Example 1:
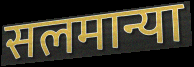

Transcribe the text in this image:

सलमान्या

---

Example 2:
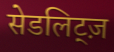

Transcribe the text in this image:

सेडलिट्ज़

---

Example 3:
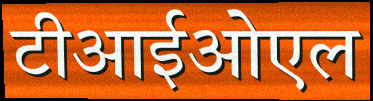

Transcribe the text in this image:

टीआईओएल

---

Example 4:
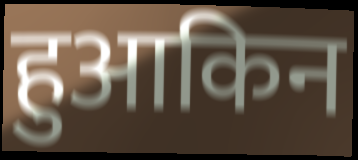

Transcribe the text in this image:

हुआकिन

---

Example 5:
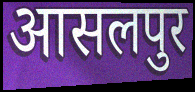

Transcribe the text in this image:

आसलपुर